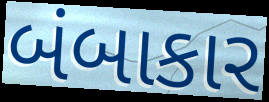
બંબાકાર